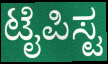
ಟೈಪಿಸ್ಟ